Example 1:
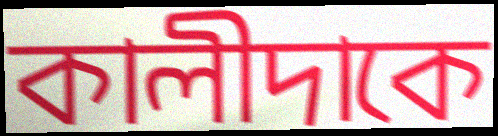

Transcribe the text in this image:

কালীদাকে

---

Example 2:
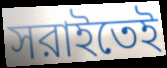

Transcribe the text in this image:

সরাইতেই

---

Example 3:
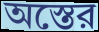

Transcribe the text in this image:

অস্তের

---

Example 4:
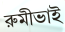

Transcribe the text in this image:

রুমীভাই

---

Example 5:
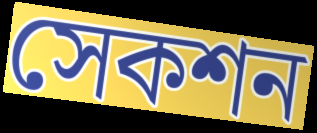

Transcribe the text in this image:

সেকশন